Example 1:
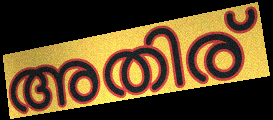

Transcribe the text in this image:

അതിര്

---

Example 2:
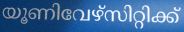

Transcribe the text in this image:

യൂണിവേഴ്സിറ്റിക്ക്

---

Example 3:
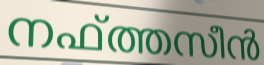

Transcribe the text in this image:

നഫ്ത്തസീൻ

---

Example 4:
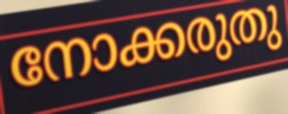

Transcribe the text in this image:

നോക്കരുതു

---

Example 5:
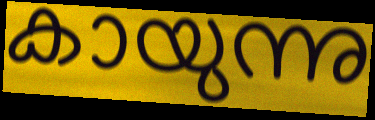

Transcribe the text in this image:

കായുന്നു